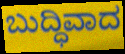
ಬುದ್ಧಿವಾದ